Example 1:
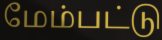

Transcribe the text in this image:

மேம்பட்டு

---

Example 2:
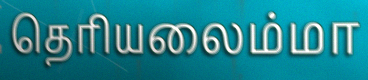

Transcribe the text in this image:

தெரியலைம்மா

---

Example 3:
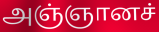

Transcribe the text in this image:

அஞ்ஞானச்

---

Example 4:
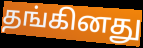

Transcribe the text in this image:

தங்கினது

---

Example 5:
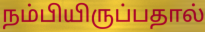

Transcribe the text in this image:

நம்பியிருப்பதால்